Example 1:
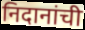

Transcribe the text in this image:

निदानांची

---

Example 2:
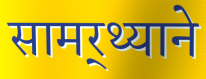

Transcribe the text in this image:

सामर्थ्याने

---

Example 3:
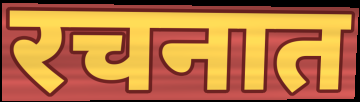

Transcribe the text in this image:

रचनात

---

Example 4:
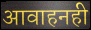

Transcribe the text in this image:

आवाहनही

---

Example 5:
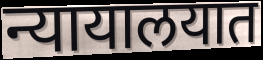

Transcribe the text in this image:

न्यायालयात